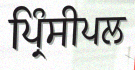
ਪ੍ਰਿੰਸੀਪਲ